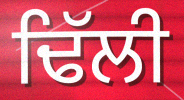
ਢਿੱਲੀ